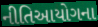
નીતિઆયોગના